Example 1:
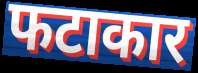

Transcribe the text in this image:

फटाकार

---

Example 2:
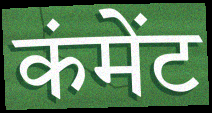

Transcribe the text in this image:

कंमेंट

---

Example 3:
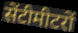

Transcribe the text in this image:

सेंटीमीटरों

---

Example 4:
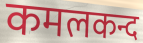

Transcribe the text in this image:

कमलकन्द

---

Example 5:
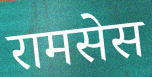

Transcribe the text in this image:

रामसेस